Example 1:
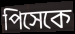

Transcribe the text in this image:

পিসেকে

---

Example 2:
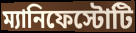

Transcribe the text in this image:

ম্যানিফেস্টোটি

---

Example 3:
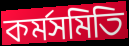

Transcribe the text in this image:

কর্মসমিতি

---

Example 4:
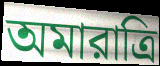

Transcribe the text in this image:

অমারাত্রি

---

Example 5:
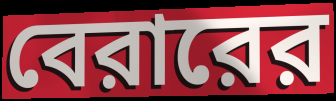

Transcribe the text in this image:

বেরারের